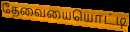
தேவையையொட்டி